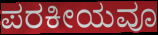
ಪರಕೀಯವೂ